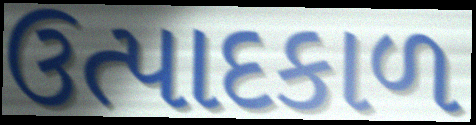
ઉત્પાદકાળ